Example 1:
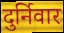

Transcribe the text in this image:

दुर्निवार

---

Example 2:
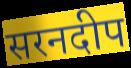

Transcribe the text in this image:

सरनदीप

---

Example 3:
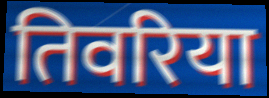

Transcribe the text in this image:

तिवरिया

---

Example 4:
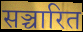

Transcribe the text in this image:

सञ्चारित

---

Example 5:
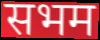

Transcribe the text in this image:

सभम